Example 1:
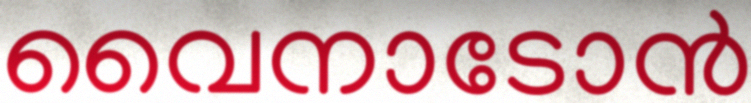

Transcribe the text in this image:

വൈനാടോൻ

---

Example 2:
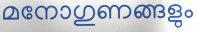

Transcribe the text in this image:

മനോഗുണങ്ങളും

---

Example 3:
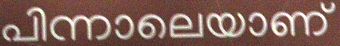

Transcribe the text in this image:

പിന്നാലെയാണ്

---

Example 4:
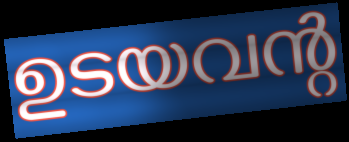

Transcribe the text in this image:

ഉടയവന്റ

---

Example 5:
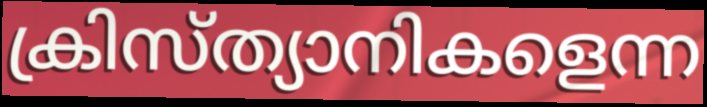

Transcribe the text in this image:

ക്രിസ്ത്യാനികളെന്ന